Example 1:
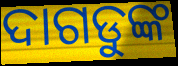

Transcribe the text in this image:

ଦାଗଡୁଙ୍କ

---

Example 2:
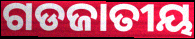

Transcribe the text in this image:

ଗଡଜାତୀୟ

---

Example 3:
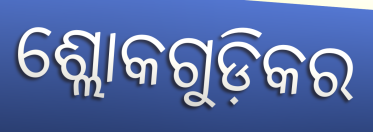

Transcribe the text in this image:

ଶ୍ଲୋକଗୁଡ଼ିକର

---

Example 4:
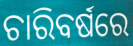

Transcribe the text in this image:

ଚାରିବର୍ଷରେ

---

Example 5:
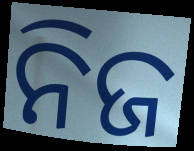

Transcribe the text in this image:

ନିଜ